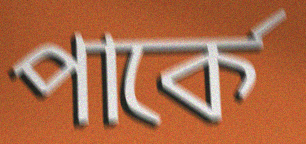
পার্কে